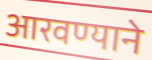
आरवण्याने